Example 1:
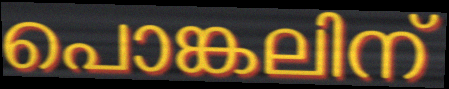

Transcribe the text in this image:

പൊങ്കലിന്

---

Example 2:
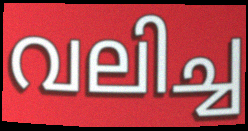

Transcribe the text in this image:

വലിച്ച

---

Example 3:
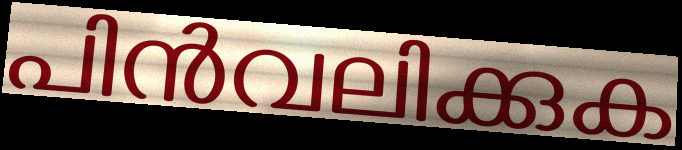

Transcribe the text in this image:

പിൻവലിക്കുക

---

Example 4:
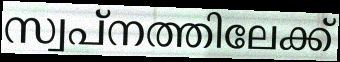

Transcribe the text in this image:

സ്വപ്നത്തിലേക്ക്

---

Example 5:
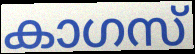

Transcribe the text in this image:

കാഗസ്